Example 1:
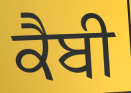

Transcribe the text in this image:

ਕੈਬੀ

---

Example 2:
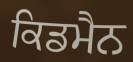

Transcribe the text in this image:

ਕਿਡਮੈਨ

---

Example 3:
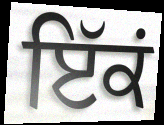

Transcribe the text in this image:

ਇੱਕਂ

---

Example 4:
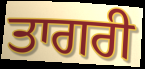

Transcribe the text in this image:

ਤਾਗਰੀ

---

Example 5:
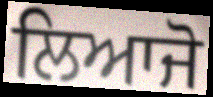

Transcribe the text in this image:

ਲਿਆਜੋ